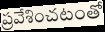
ప్రవేశించటంతో